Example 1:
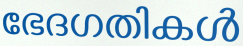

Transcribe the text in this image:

ഭേദഗതികൾ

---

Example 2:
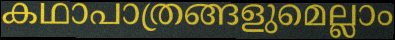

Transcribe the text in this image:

കഥാപാത്രങ്ങളുമെല്ലാം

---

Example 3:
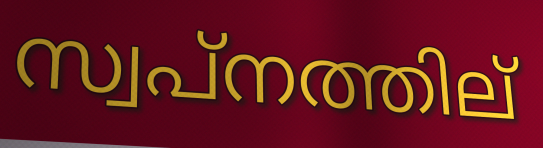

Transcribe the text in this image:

സ്വപ്നത്തില്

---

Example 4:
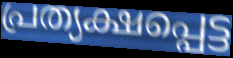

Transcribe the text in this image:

പ്രത്യക്ഷപ്പെട്ട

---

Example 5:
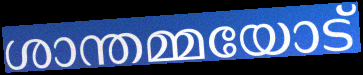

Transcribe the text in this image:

ശാന്തമ്മയോട്